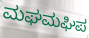
ಮಘಮಘಿಪ